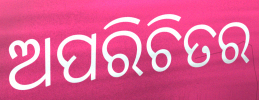
ଅପରିଚିତର